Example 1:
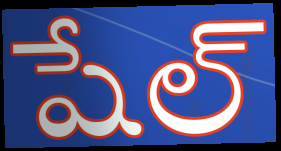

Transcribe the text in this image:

షేల్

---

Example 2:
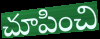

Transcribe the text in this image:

చూపించి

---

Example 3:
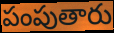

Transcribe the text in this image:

పంపుతారు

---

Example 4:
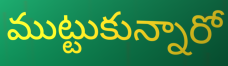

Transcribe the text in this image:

ముట్టుకున్నారో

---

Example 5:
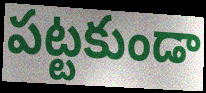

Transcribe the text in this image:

పట్టకుండా